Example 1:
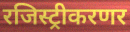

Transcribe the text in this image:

रजिस्ट्रीकरणर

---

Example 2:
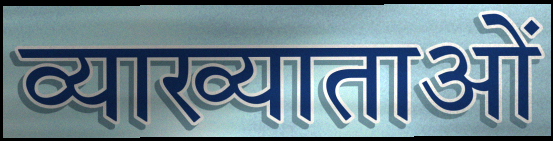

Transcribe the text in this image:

व्याख्याताओं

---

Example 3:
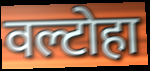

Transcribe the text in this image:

वल्टोहा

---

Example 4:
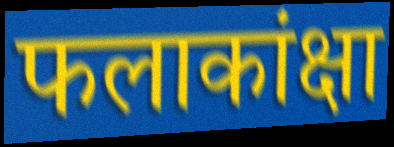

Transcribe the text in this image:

फलाकांक्षा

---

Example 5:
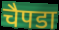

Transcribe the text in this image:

चैपडा